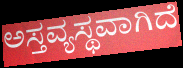
ಅಸ್ತವ್ಯಸ್ಥವಾಗಿದೆ